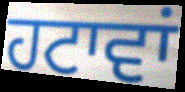
ਹਟਾਵਾਂ